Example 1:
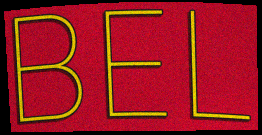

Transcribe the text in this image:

BEL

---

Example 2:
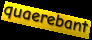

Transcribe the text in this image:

quaerebant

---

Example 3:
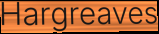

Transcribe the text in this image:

Hargreaves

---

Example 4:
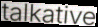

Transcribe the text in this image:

talkative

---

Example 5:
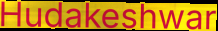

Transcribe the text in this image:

Hudakeshwar